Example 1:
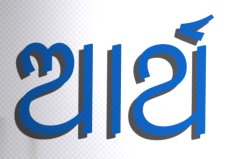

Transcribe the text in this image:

ଆର୍ଥ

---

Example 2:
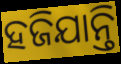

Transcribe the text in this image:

ହଜିଯାନ୍ତି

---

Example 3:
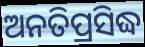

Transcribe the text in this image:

ଅନତିପ୍ରସିଦ୍ଧ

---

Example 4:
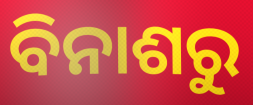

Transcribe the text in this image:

ବିନାଶରୁ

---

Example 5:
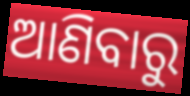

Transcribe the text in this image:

ଆଣିବାରୁ